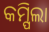
କମ୍ପିଲା